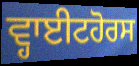
ਵ੍ਹਾਈਟਹੋਰਸ